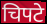
चिपटे